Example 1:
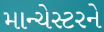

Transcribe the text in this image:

માન્ચેસ્ટરને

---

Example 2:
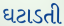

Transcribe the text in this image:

ઘટાડતી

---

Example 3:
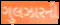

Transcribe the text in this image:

ગુલઝારની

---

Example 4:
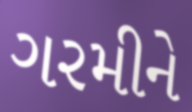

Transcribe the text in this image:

ગરમીને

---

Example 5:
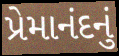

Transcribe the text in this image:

પ્રેમાનંદનું